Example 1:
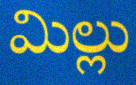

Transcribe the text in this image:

మిల్లు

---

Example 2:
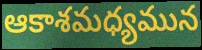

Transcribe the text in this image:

ఆకాశమధ్యమున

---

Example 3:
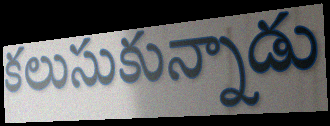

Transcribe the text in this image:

కలుసుకున్నాడు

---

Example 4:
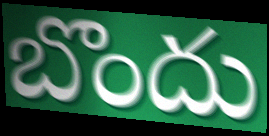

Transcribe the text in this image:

బొందు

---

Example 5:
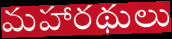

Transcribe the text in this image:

మహారథులు